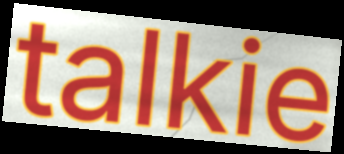
talkie